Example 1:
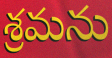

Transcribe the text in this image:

శ్రమను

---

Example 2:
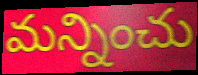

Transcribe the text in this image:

మన్నించు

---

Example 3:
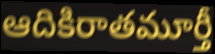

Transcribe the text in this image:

ఆదికిరాతమూర్తీ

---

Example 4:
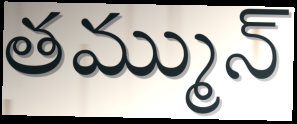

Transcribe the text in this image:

తమ్మున్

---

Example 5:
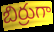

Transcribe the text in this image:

బిర్రుగా